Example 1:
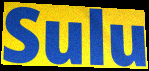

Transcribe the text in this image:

Sulu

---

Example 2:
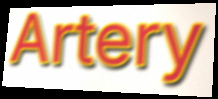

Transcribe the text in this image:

Artery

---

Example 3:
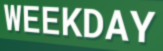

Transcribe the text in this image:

WEEKDAY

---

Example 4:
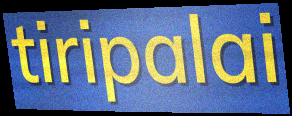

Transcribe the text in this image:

tiripalai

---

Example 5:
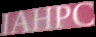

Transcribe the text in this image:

IAHPC